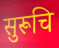
सुरूचि